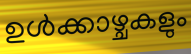
ഉൾക്കാഴ്ചകളും